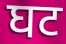
घट